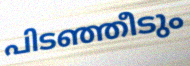
പിടഞ്ഞീടും